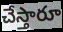
చేస్తారూ